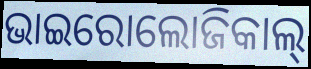
ଭାଇରୋଲୋଜିକାଲ୍